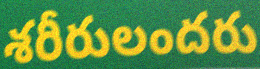
శరీరులందరు